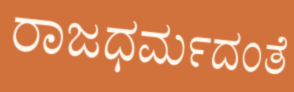
ರಾಜಧರ್ಮದಂತೆ